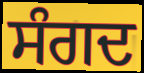
ਸੰਗਦ